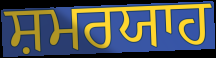
ਸ਼ਮਰਯਾਹ